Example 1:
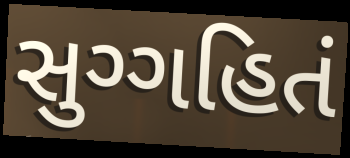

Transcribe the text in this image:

સુગ્ગહિતં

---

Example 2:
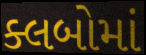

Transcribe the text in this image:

ક્લબોમાં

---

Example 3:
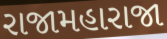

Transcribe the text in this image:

રાજામહારાજા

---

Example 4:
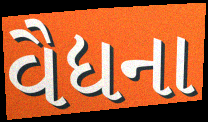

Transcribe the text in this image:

વૈદ્યના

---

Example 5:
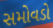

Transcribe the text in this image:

સમોવડો